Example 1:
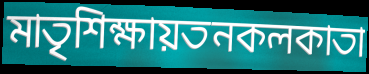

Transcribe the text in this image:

মাতৃশিক্ষায়তনকলকাতা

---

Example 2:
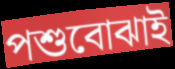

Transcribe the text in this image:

পশুবোঝাই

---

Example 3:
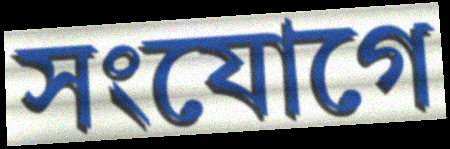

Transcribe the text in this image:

সংযোগে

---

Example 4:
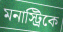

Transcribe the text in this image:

মনাস্ট্রিকে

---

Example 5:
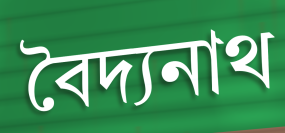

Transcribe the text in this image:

বৈদ্যনাথ